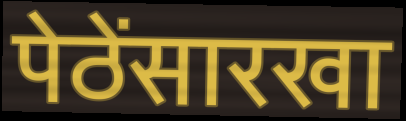
पेठेंसारखा